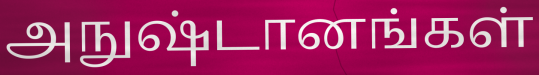
அநுஷ்டானங்கள்